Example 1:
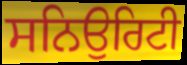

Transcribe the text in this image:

ਸਨਿਉਰਿਟੀ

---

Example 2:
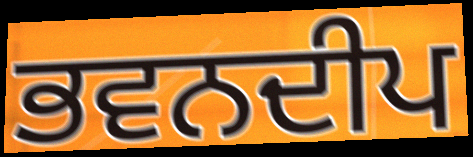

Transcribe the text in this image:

ਭਵਨਦੀਪ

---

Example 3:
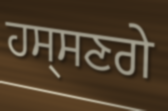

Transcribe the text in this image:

ਹਸ੍ਸਣਗੇ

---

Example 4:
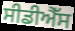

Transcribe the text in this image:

ਸੀਡੀਐੱਸ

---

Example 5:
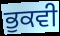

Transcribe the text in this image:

ਭੁਕਵੀ